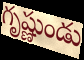
గృష్ణుండు